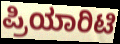
ಪ್ರಿಯಾರಿಟಿ